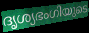
ദൃശ്യഭംഗിയുടെ